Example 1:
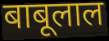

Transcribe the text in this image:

बाबूलाल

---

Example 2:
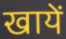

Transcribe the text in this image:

खायें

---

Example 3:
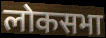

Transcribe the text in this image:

लोकसभा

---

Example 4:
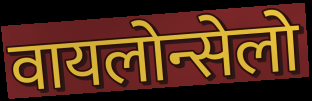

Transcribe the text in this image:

वायलोन्सेलो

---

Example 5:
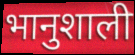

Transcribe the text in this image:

भानुशाली